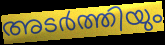
അടർത്തിയും